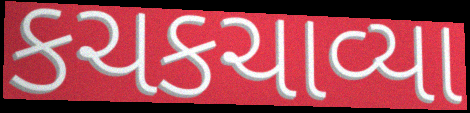
કચકચાવ્યા